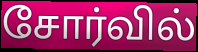
சோர்வில்